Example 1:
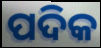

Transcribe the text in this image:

ପଦିକ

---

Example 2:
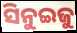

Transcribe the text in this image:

ସିନୁଇଜୁ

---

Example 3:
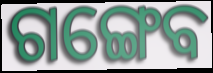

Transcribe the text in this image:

ଗଙ୍ଗେବ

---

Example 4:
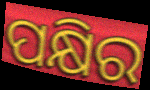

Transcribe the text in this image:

ପକ୍ଷିର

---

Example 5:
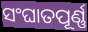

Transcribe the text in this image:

ସଂଘାତପୂର୍ଣ୍ଣ